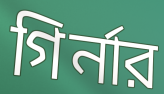
গির্নার